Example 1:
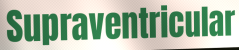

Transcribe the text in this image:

Supraventricular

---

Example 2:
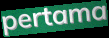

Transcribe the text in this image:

pertama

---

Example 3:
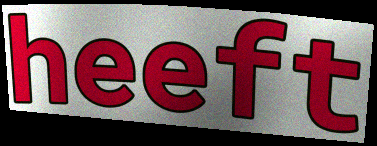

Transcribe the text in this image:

heeft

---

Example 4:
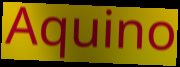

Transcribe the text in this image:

Aquino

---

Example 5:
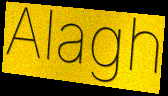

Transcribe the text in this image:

Alagh